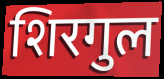
शिरगुल